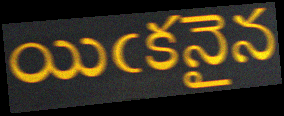
యిఁకనైన